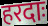
हरदाः